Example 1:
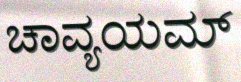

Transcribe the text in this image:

ಚಾವ್ಯಯಮ್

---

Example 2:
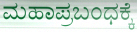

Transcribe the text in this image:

ಮಹಾಪ್ರಬಂಧಕ್ಕೆ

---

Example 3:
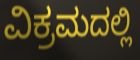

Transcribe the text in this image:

ವಿಕ್ರಮದಲ್ಲಿ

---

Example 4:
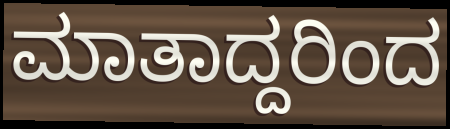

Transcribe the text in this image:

ಮಾತಾದ್ದರಿಂದ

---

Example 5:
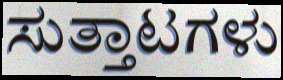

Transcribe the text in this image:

ಸುತ್ತಾಟಗಳು